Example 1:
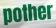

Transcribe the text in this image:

pother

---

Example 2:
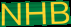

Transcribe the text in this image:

NHB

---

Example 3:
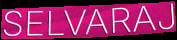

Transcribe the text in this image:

SELVARAJ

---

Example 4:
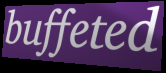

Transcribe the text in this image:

buffeted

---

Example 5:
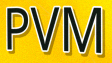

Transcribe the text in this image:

PVM